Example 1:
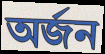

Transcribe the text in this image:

অৰ্জন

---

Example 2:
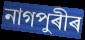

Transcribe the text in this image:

নাগপুৰীৰ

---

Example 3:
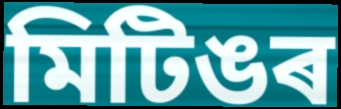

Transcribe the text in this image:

মিটিঙৰ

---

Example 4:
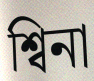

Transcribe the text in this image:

শ্বিনা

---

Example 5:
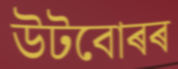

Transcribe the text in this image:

উটবোৰৰ